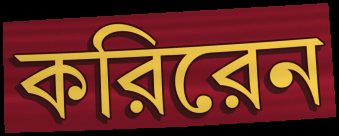
করিরেন